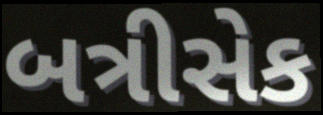
બત્રીસેક